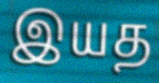
இயத